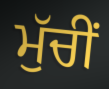
ਮੁੱਚੀਂ